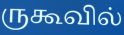
ருகூவில்